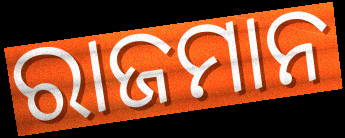
ରାଜମାନ